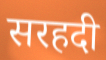
सरहदी